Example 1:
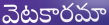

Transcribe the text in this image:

వెటకారమా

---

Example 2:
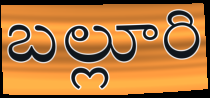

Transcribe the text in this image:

బల్లూరి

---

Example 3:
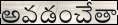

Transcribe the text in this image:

అవడంచేతా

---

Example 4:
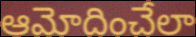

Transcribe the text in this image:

ఆమోదించేలా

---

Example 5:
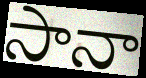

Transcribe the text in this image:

సానా